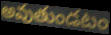
అవుతుండటం